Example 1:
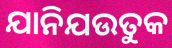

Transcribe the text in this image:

ଯାନିଯଉତୁକ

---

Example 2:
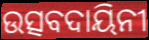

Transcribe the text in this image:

ଉତ୍ସବଦାୟିନୀ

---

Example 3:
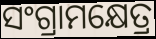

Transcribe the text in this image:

ସଂଗ୍ରାମକ୍ଷେତ୍ର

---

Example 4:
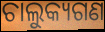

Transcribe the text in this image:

ଚାଲୁକ୍ୟଗଣ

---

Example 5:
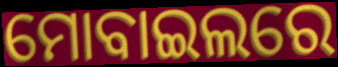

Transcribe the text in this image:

ମୋବାଇଲରେ